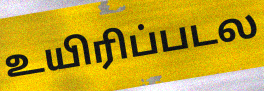
உயிரிப்படல